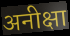
अनीक्षा